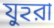
যুহরা